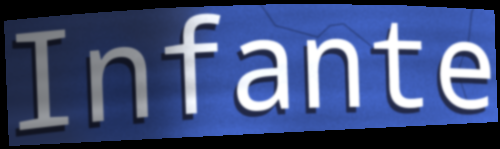
Infante